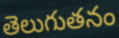
తెలుగుతనం